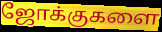
ஜோக்குகளை